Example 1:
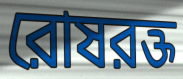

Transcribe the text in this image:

রোষরক্ত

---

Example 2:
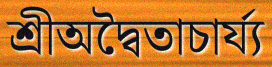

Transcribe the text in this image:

শ্রীঅদ্বৈতাচার্য্য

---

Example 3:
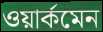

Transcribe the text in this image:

ওয়ার্কমেন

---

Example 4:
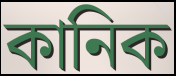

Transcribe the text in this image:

কানিক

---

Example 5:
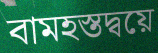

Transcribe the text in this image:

বামহস্তদ্বয়ে